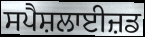
ਸਪੈਸ਼ਲਾਈਜ਼ਡ